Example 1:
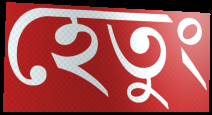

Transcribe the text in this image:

হেতুং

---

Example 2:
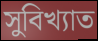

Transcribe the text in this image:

সুবিখ্যাত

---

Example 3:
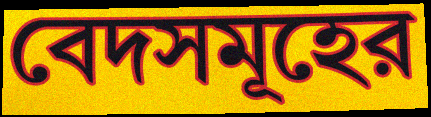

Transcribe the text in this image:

বেদসমূহের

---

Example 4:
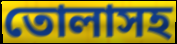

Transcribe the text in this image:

তোলাসহ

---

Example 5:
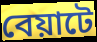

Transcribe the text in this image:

বেয়াটে